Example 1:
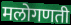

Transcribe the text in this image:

मलोगणती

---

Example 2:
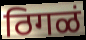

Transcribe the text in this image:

ठिगळं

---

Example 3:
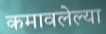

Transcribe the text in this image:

कमावलेल्या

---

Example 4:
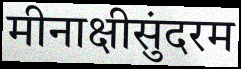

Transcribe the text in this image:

मीनाक्षीसुंदरम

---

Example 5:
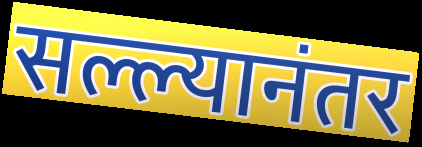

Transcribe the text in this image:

सल्ल्यानंतर